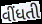
વીંધતી